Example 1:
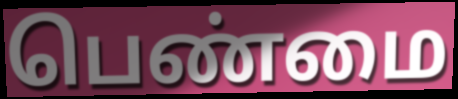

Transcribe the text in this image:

பெண்மை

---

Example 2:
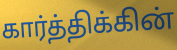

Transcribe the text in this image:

கார்த்திக்கின்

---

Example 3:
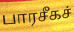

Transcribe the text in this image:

பாரசீகச்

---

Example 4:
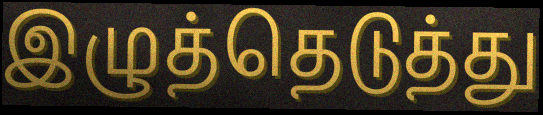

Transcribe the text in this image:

இழுத்தெடுத்து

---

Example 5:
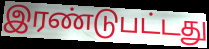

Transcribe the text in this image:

இரண்டுபட்டது